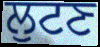
ਲੁਟਣ